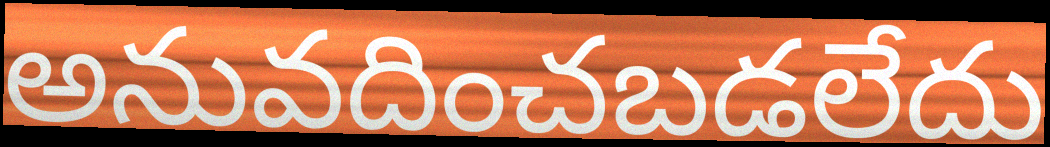
అనువదించబడలేదు